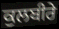
ਕੁਲਬੀਰੇ